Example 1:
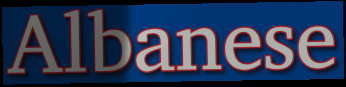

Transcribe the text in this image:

Albanese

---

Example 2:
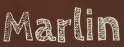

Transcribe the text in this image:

Marlin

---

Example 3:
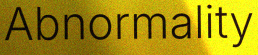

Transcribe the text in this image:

Abnormality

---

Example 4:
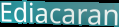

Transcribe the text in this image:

Ediacaran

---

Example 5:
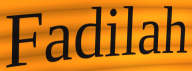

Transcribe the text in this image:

Fadilah